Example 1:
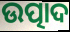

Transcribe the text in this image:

ଉତ୍ପାଦ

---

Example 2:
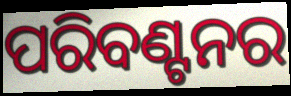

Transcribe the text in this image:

ପରିବଣ୍ଟନର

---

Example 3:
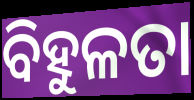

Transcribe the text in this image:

ବିହୁଳତା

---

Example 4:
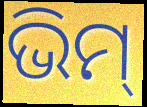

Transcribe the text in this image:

ଭିମ୍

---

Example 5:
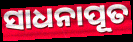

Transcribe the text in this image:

ସାଧନାପୂତ